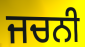
ਜਚਨੀ